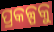
ପ୍ରକଳ୍ପକୁ